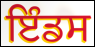
ਇੰਡਸ